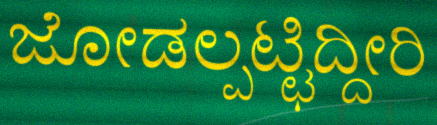
ಜೋಡಲ್ಪಟ್ಟಿದ್ದೀರಿ